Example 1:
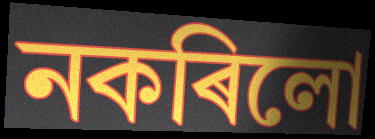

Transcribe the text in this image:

নকৰিলো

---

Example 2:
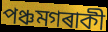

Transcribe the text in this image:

পঞ্চমগৰাকী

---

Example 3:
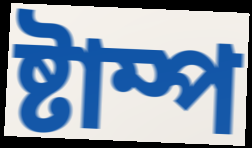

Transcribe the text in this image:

ষ্টাম্প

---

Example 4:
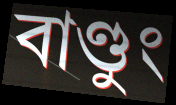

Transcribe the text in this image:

বাণ্ডুং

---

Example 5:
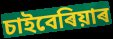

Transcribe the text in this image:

চাইবেৰিয়াৰ